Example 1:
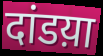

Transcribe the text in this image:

दांडय़ा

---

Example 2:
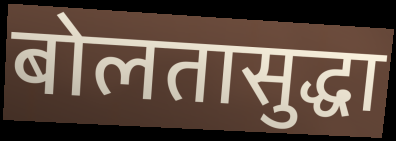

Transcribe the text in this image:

बोलतासुद्धा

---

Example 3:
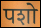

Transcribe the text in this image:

पशो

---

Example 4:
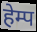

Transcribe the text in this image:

हेम्प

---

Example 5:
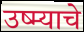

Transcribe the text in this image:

उष्म्याचे